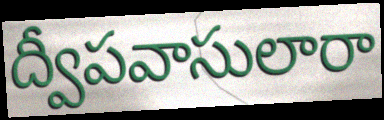
ద్వీపవాసులారా